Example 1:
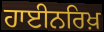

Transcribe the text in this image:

ਹਾਈਨਰਿਖ਼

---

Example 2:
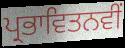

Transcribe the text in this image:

ਪ੍ਰਭਾਵਿਤਨਵੀਂ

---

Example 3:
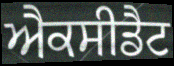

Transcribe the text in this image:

ਐਕਸੀਡੈਟ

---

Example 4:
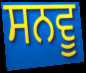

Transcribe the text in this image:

ਸਨਵੂ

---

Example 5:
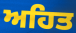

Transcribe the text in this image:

ਅਹਿਤ